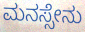
ಮನಸ್ಸೇನು